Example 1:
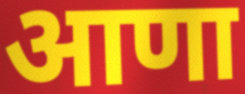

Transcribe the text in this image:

आणा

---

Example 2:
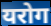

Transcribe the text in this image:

यरोग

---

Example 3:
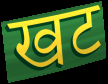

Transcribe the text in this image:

खट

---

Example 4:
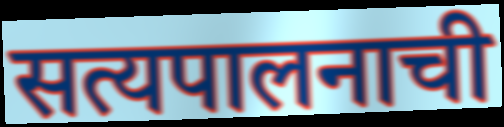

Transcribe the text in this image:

सत्यपालनाची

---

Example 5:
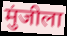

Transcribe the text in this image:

मुंजीला